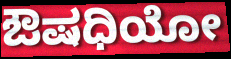
ಔಷಧಿಯೋ